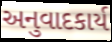
અનુવાદકાર્ય